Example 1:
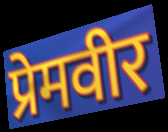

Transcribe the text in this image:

प्रेमवीर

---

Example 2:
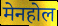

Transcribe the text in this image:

मेनहोल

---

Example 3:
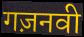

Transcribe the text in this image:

गज़नवी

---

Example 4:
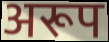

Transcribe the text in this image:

अरूप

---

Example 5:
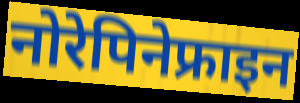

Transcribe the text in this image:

नोरेपिनेफ्राइन